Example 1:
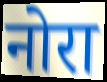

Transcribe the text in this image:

नोरा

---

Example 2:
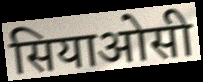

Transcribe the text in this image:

सियाओसी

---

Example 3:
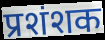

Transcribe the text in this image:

प्रशंशक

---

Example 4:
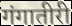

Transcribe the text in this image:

गंगातीरी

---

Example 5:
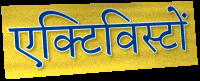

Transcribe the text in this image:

एक्टिविस्टों